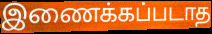
இணைக்கப்படாத